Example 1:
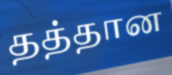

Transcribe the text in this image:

தத்தான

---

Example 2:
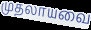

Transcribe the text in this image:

முதலாயவை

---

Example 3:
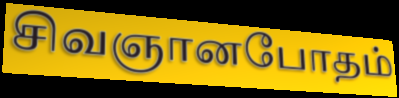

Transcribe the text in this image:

சிவஞானபோதம்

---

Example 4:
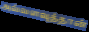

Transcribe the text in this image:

அவ்வளவுத்தான்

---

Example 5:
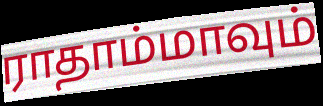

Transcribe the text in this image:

ராதாம்மாவும்